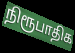
நிரூபாதிக